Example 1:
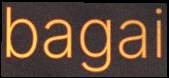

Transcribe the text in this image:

bagai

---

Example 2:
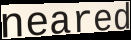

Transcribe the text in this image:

neared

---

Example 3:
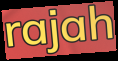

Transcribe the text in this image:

rajah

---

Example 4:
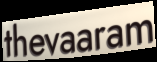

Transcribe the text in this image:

thevaaram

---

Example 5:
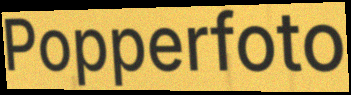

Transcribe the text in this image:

Popperfoto